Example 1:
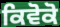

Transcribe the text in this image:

ਕਿਵੋਕੋ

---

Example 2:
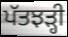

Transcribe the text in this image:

ਪੱਤਝੜ੍ਹੀ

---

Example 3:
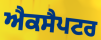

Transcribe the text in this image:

ਐਕਸੈਪਟਰ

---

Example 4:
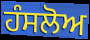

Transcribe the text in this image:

ਹੰਸਲੋਅ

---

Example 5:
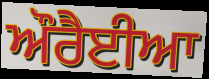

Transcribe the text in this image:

ਔਰੈਈਆ